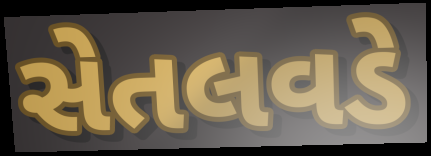
સેતલવડે